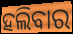
ହଲିବାର